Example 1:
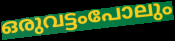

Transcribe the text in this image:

ഒരുവട്ടംപോലും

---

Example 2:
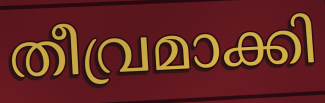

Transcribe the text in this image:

തീവ്രമാക്കി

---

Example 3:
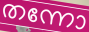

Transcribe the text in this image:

തന്നോ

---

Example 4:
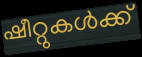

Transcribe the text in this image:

ഷീറ്റുകൾക്ക്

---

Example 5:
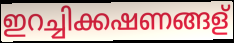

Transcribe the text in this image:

ഇറച്ചിക്കഷണങ്ങള്